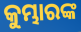
କୁମ୍ଭାରଙ୍କ